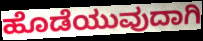
ಹೊಡೆಯುವುದಾಗಿ